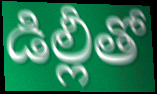
డిల్లీతో